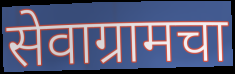
सेवाग्रामचा